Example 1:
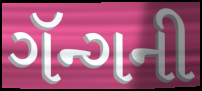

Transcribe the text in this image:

ગૅન્ગની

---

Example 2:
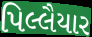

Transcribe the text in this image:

પિલ્લૈયાર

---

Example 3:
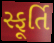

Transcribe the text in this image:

સ્ફૂર્તિ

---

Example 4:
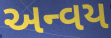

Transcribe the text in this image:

અન્વય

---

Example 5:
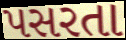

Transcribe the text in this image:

પસરતા